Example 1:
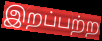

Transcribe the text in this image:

இறப்பற்ற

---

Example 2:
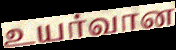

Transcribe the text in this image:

உயர்வான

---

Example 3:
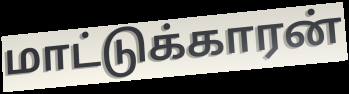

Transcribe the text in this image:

மாட்டுக்காரன்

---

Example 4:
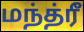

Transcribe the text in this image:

மந்த்ரீ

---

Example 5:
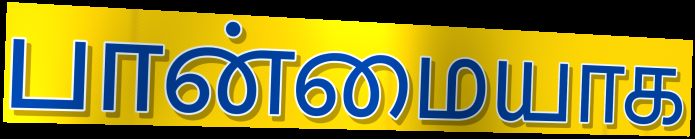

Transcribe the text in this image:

பான்மையாக